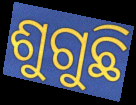
ଶୁଗୁଛି